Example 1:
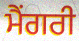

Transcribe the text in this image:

ਮੈਂਗਰੀ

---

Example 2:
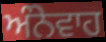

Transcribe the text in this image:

ਅੰਨੇਵਾਹ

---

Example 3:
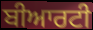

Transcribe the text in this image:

ਬੀਆਰਟੀ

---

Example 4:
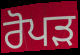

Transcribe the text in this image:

ਰੋਪਡ਼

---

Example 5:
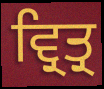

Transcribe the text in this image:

ਵ੍ਰਿਤ੍ਰ